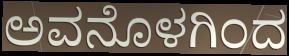
ಅವನೊಳಗಿಂದ